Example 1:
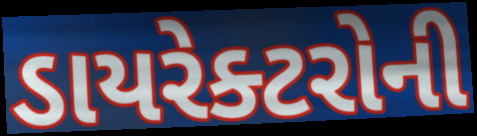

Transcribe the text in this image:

ડાયરેક્ટરોની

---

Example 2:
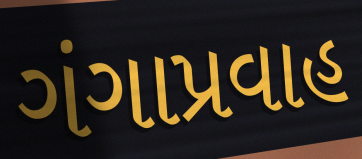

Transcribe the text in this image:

ગંગાપ્રવાહ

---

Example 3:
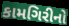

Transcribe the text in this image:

કામગિરીનો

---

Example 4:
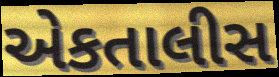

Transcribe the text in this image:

એકતાલીસ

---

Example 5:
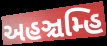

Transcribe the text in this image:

અહઞ્ચમ્હિ